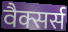
वैक्सर्स